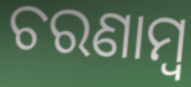
ଚରଣାମ୍ବ